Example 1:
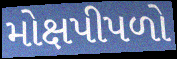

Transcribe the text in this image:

મોક્ષપીપળો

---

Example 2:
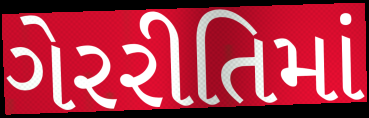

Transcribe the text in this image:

ગેરરીતિમાં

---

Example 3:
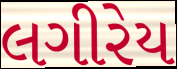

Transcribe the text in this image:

લગીરેય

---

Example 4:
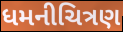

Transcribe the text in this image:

ધમનીચિત્રણ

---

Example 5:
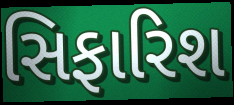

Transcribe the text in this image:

સિફારિશ